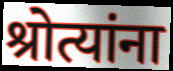
श्रोत्यांना